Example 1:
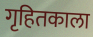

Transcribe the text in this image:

गृहितकाला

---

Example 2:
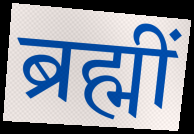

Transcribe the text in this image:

ब्रह्मीं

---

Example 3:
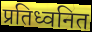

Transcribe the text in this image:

प्रतिध्वनित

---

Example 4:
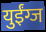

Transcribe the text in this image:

युईंग्ज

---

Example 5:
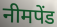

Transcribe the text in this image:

नीमपेंड